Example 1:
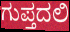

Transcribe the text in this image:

ಗುಪ್ತದಲಿ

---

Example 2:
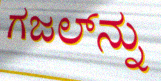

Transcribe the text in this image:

ಗಜಲ್‍ನ್ನು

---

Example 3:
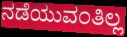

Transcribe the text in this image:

ನಡೆಯುವಂತಿಲ್ಲ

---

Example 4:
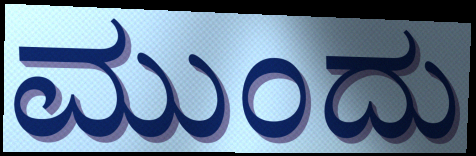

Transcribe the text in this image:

ಮುಂದು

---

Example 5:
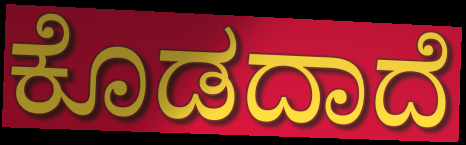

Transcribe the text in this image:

ಕೊಡದಾದೆ